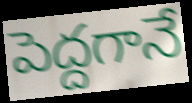
పెద్దగానే